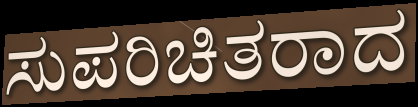
ಸುಪರಿಚಿತರಾದ